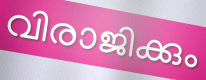
വിരാജിക്കും